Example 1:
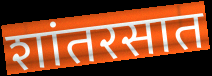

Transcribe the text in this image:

शांतरसात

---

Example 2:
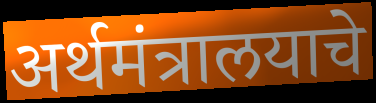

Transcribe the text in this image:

अर्थमंत्रालयाचे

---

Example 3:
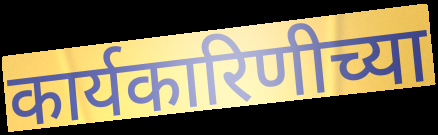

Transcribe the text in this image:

कार्यकारिणीच्या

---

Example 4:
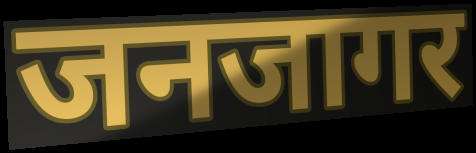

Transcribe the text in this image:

जनजागर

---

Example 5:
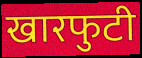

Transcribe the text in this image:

खारफुटी